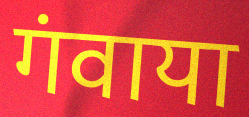
गंवाया